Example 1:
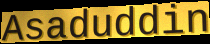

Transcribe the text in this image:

Asaduddin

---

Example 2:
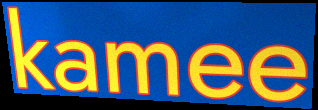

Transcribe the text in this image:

kamee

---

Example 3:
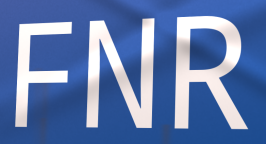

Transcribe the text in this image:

FNR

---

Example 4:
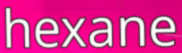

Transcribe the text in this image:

hexane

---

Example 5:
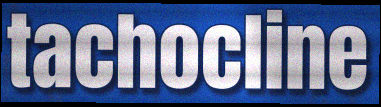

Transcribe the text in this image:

tachocline